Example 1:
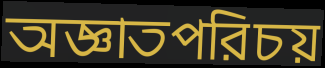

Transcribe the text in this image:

অজ্ঞাতপরিচয়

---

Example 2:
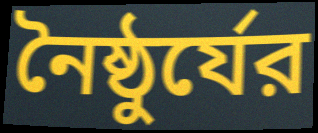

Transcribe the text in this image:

নৈষ্ঠুর্যের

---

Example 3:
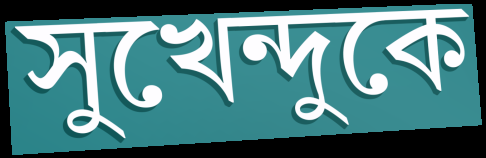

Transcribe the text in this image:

সুখেন্দুকে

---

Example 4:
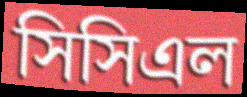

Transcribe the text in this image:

সিসিএল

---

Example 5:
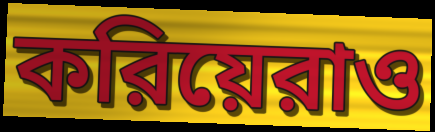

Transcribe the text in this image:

করিয়েরাও